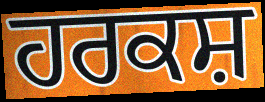
ਹਰਕਸ਼